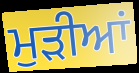
ਮੁੜੀਆਂ